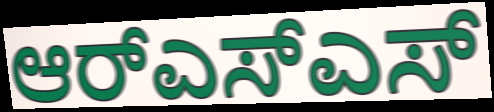
ಆರ್‌ಎಸ್ಎಸ್